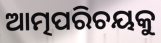
ଆତ୍ମପରିଚୟକୁ